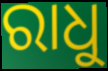
ରାଧୁ